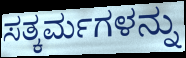
ಸತ್ಕರ್ಮಗಳನ್ನು